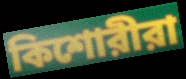
কিশোরীরা